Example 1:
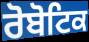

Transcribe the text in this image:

ਰੋਬੋਟਿਕ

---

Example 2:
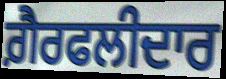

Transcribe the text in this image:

ਗ਼ੈਰਫਲੀਦਾਰ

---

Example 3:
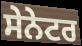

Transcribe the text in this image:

ਸੇਨੇਟਰ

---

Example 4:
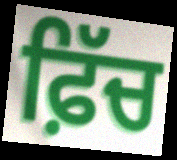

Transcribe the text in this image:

ਫ਼ਿੱਚ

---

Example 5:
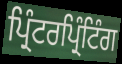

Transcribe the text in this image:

ਪ੍ਰਿੰਟਰਪ੍ਰਿੰਟਿੰਗ